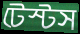
টেস্টস